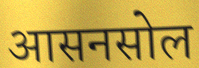
आसनसोल